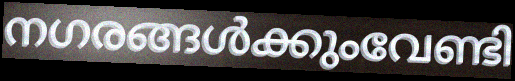
നഗരങ്ങൾക്കുംവേണ്ടി